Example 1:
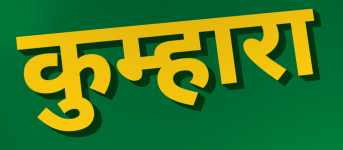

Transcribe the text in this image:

कुम्हारा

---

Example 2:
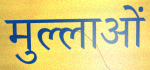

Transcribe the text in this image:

मुल्लाओं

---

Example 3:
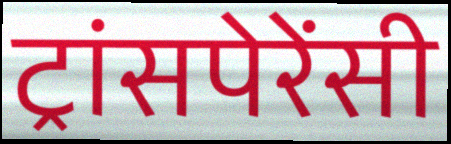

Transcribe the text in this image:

ट्रांसपेरेंसी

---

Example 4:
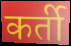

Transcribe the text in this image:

कर्ती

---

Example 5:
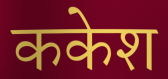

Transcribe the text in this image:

ककेश